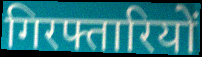
गिरफ्तारियों